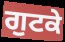
ਗੁਟਕੇ